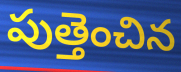
పుత్తెంచిన